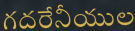
గదరేనీయుల